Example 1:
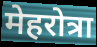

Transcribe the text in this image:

मेहरोत्रा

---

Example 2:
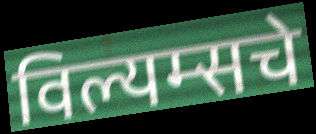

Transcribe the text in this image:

विल्यम्सचे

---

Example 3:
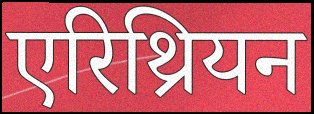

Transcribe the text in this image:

एरिथ्रियन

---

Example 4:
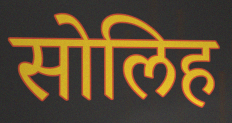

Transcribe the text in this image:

सोलिह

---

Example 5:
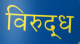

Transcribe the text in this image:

विरुद्ध